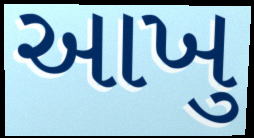
આખુ